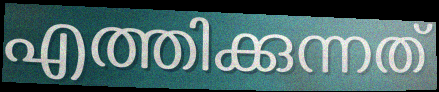
എത്തിക്കുന്നത്